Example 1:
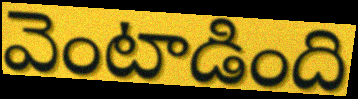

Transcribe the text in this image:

వెంటాడింది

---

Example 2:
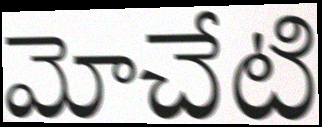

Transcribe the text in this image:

మోచేటి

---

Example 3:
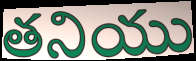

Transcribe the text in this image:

తనియు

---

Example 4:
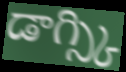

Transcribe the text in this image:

డాగ్స్కి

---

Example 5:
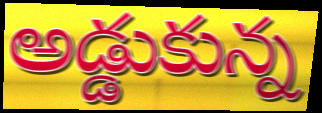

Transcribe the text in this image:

అడ్డుకున్న